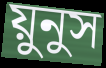
য়ুনুস